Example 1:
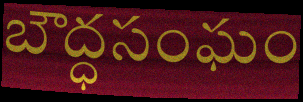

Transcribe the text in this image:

బౌద్ధసంఘం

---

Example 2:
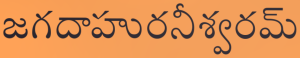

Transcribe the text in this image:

జగదాహురనీశ్వరమ్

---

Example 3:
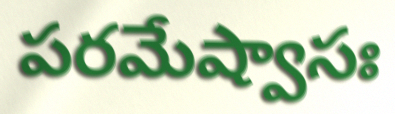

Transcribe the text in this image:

పరమేష్వాసః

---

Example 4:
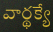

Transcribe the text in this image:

వార్థక్యే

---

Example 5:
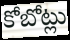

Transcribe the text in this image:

కోబోట్లు